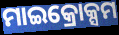
ମାଇକ୍ରୋକ୍ସମ